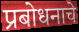
प्रबोधनाचे